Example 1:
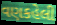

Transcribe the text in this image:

વણકહેલી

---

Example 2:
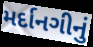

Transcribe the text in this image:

મર્દાનગીનું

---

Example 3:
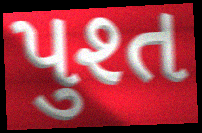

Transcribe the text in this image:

પુશ્ત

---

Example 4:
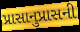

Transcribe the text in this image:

પ્રાસાનુપ્રાસની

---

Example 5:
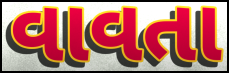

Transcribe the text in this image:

વાવતા